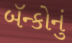
બૅન્કોનું